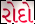
રોદો